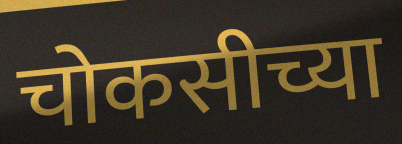
चोकसीच्या